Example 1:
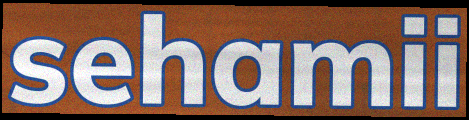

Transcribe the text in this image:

sehamii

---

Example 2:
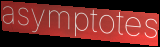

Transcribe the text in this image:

asymptotes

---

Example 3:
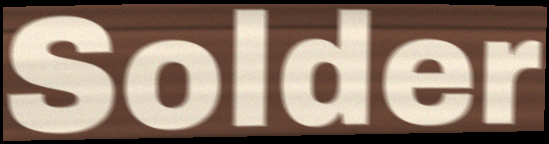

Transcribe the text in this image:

Solder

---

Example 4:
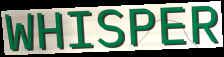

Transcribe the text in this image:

WHISPER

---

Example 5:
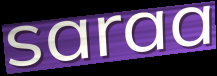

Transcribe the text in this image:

saraa